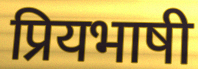
प्रियभाषी